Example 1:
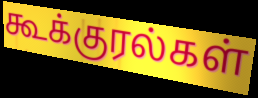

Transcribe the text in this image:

கூக்குரல்கள்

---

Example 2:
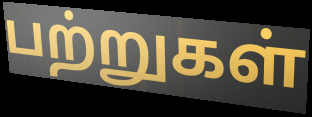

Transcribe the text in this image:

பற்றுகள்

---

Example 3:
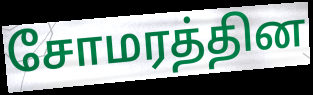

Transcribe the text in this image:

சோமரத்தின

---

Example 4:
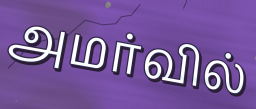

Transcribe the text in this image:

அமர்வில்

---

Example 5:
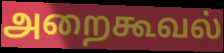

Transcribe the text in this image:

அறைகூவல்